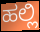
ಹಲ್ಲಿ